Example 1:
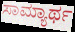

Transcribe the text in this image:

ಸಾಮ್ಯಾರ್ಥ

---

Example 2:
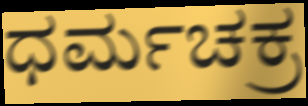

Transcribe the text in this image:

ಧರ್ಮಚಕ್ರ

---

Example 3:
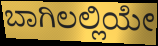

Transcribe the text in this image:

ಬಾಗಿಲಲ್ಲಿಯೇ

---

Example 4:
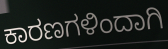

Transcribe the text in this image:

ಕಾರಣಗಳಿಂದಾಗಿ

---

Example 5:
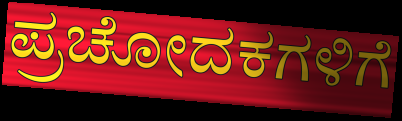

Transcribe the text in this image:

ಪ್ರಚೋದಕಗಳಿಗೆ